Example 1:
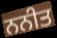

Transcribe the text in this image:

ਨਨੀਤ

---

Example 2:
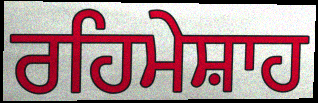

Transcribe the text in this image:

ਰਹਿਮੇਸ਼ਾਹ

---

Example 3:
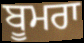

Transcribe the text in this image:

ਬੂਮਰਾ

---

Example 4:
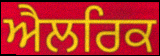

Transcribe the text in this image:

ਐਲਰਿਕ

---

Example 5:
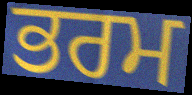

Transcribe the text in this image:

ਭਰਮ